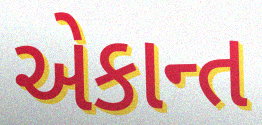
એકાન્ત